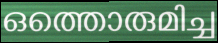
ഒത്തൊരുമിച്ച